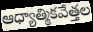
ఆధ్యాత్మికవేత్తల